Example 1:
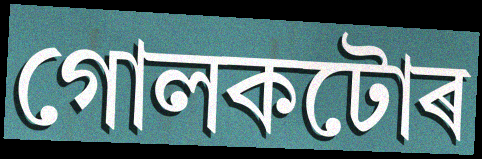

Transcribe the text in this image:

গোলকটোৰ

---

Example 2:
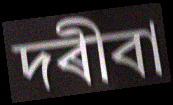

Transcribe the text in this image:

দৰীবা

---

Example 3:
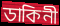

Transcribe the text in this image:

ডাকিনী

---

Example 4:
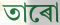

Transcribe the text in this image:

তাৰো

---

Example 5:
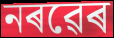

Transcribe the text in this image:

নৰৱেৰ